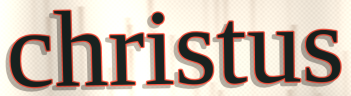
christus